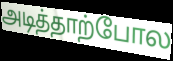
அடித்தாற்போல